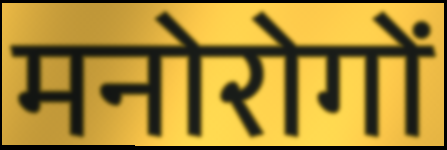
मनोरोगों